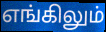
எங்கிலும்